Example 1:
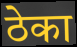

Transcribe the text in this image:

ठेका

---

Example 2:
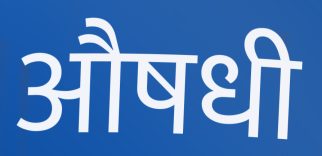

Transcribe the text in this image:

औषधी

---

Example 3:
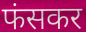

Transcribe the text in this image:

फंसकर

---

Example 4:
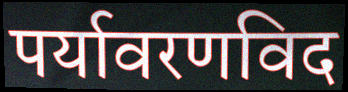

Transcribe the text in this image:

पर्यावरणविद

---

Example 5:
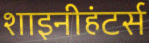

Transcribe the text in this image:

शाइनीहंटर्स